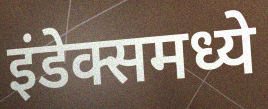
इंडेक्समध्ये